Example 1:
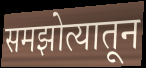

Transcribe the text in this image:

समझोत्यातून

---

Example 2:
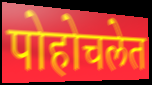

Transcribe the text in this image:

पोहोचलेत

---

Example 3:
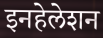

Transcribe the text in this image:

इनहेलेशन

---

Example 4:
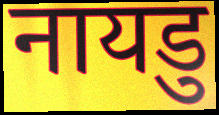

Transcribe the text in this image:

नायडु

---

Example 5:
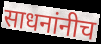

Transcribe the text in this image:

साधनांनीच